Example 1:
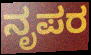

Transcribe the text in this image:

ನೃಪರ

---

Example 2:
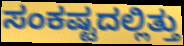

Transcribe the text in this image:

ಸಂಕಷ್ಟದಲ್ಲಿತ್ತು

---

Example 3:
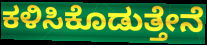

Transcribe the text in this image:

ಕಳಿಸಿಕೊಡುತ್ತೇನೆ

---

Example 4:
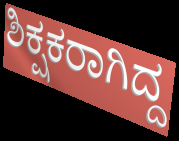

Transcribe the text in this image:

ಶಿಕ್ಷಕರಾಗಿದ್ದ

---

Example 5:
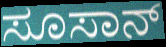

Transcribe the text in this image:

ಸೂಸಾನ್